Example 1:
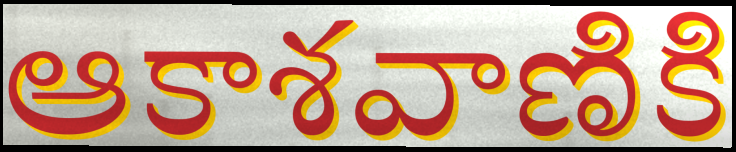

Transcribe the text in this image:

ఆకాశవాణికి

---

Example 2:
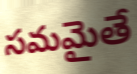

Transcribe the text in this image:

సమమైతే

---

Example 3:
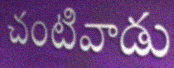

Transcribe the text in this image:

చంటివాడు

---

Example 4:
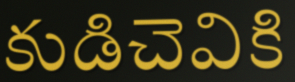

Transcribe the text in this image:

కుడిచెవికి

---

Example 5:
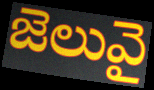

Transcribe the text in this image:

జెలువై